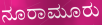
ನೂರಾಮೂರು